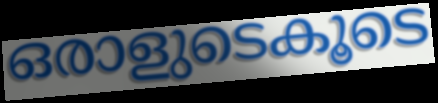
ഒരാളുടെകൂടെ